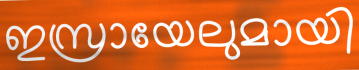
ഇസ്രായേലുമായി